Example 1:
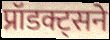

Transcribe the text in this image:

प्रॉडक्ट्सने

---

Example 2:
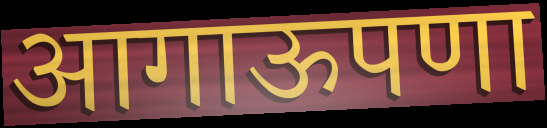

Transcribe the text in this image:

आगाऊपणा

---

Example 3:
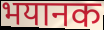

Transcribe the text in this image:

भयानक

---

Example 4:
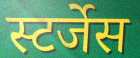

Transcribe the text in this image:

स्टर्जेस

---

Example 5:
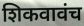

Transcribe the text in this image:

शिकवावंच